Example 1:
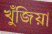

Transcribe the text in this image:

খুঁজিয়া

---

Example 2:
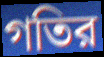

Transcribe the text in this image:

গতির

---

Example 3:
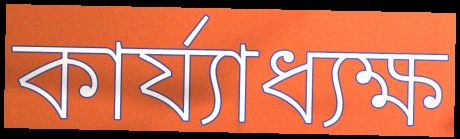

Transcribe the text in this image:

কার্য্যাধ্যক্ষ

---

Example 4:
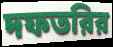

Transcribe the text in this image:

দফতরির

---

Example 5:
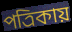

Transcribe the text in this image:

পত্রিকায়